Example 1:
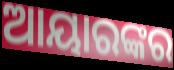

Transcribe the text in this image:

ଆୟାରଙ୍କର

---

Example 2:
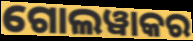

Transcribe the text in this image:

ଗୋଲୱାକର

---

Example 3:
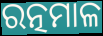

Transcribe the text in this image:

ରତ୍ନମାଳ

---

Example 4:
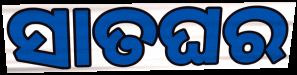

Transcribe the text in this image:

ସାତଘର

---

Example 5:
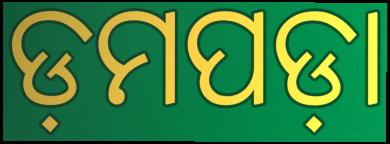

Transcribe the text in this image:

ଡ଼ମପଡ଼ା